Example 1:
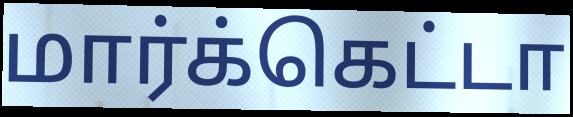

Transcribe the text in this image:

மார்க்கெட்டா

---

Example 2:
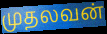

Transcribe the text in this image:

முதலவன்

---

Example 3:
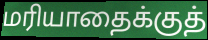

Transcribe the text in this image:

மரியாதைக்குத்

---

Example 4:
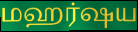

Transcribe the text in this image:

மஹர்ஷய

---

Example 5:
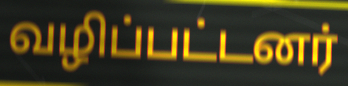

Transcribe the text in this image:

வழிப்பட்டனர்